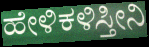
ಹೇಳಿಕಳಿಸ್ತೀನಿ